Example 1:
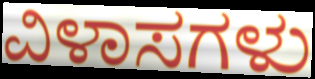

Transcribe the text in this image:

ವಿಳಾಸಗಳು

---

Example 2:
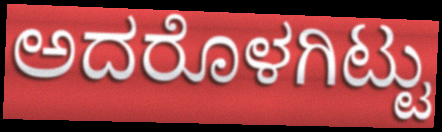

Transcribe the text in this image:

ಅದರೊಳಗಿಟ್ಟು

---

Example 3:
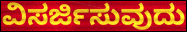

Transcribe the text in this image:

ವಿಸರ್ಜಿಸುವುದು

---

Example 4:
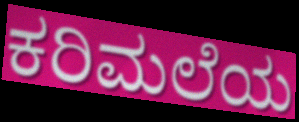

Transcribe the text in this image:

ಕರಿಮಲೆಯ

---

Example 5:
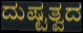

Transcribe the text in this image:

ದುಷ್ಟತ್ವದ